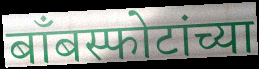
बॉंबस्फोटांच्या